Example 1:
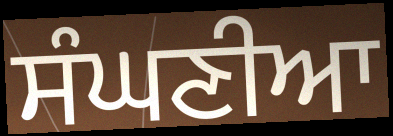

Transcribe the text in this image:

ਸੰਘਣੀਆ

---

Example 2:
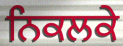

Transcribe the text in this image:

ਨਿਕਲਕੇ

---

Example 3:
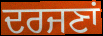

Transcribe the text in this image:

ਦਰਜਣਾਂ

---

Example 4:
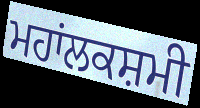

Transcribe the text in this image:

ਮਹਾਂਲਕਸ਼ਮੀ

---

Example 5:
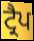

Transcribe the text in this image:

ਟ੍ਰੈਪ